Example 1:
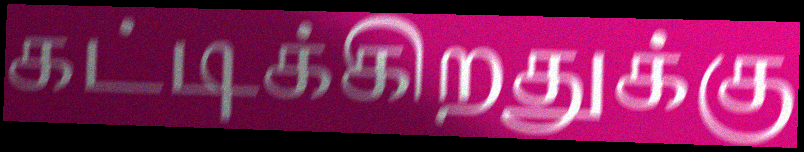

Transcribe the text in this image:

கட்டிக்கிறதுக்கு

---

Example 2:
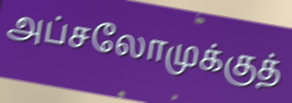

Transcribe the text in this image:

அப்சலோமுக்குத்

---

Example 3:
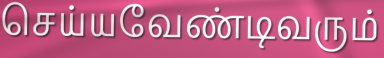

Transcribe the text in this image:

செய்யவேண்டிவரும்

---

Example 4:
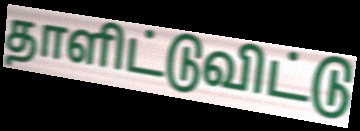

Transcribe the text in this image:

தாளிட்டுவிட்டு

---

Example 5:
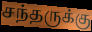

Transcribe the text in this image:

சந்தருக்கு